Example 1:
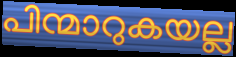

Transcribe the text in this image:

പിന്മാറുകയല്ല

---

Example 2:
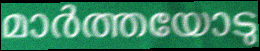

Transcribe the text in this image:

മാർത്തയോടു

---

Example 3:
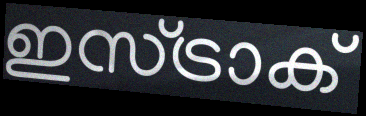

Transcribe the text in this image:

ഇസ്ട്രാക്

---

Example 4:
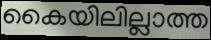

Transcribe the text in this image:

കൈയിലില്ലാത്ത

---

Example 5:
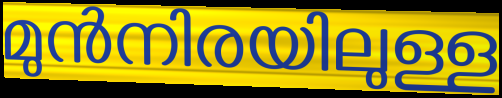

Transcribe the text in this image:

മുൻനിരയിലുള്ള